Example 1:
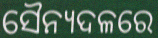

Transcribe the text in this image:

ସୈନ୍ୟଦଳରେ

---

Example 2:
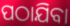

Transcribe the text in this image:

ପଠାଯିବା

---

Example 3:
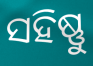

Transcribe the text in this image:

ସହିଷ୍ଣୁ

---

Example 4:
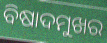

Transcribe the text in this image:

ବିଷାଦମୁଖର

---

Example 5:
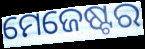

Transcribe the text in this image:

ମେଜେଷ୍ଟର